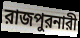
রাজপুরনারী